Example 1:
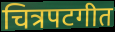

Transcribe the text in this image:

चित्रपटगीत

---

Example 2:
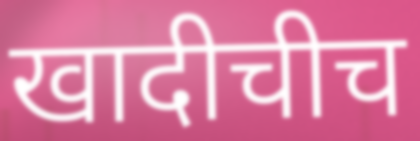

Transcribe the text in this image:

खादीचीच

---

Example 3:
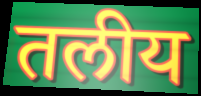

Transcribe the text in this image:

तलीय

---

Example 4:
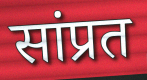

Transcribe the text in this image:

सांप्रत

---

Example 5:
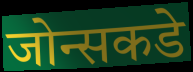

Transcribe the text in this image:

जोन्सकडे